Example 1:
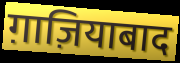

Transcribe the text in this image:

ग़ाज़ियाबाद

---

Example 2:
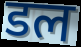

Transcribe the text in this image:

डल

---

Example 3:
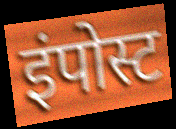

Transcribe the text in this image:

इंपोस्ट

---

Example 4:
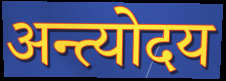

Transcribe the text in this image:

अन्त्योदय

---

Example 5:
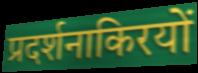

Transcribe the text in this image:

प्रदर्शनाकिरयों